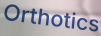
Orthotics